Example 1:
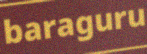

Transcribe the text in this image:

baraguru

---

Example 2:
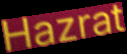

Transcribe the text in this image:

Hazrat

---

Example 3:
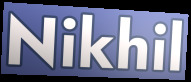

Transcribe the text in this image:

Nikhil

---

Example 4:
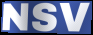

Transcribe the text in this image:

NSV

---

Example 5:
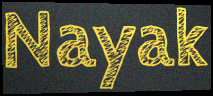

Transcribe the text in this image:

Nayak